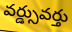
వర్డ్సువర్తు